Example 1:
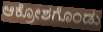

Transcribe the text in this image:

ಆಕ್ರೋಶಗೊಂಡು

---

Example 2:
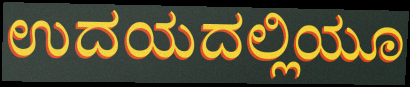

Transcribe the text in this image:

ಉದಯದಲ್ಲಿಯೂ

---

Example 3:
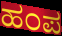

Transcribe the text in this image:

ಹಂಪ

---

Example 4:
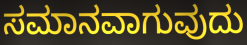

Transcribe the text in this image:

ಸಮಾನವಾಗುವುದು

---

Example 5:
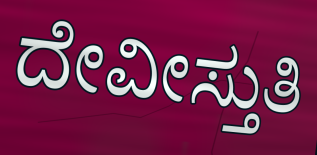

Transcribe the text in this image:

ದೇವೀಸ್ತುತಿ